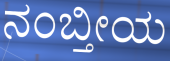
ನಂಬ್ತೀಯ